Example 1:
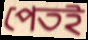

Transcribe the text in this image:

পেতই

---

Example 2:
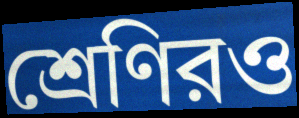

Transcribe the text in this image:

শ্রেণিরও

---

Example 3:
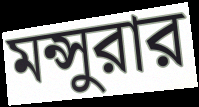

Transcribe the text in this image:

মন্সুরার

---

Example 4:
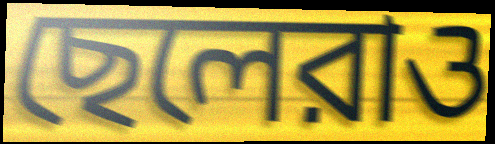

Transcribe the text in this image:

ছেলেরাও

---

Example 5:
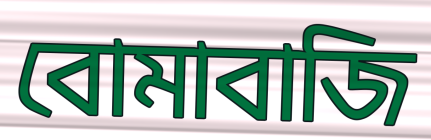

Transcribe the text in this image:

বোমাবাজি